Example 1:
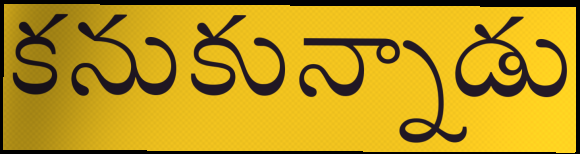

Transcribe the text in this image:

కనుకున్నాడు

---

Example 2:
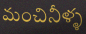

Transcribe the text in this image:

మంచినీళ్ళ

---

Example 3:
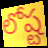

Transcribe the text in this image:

లోష్ట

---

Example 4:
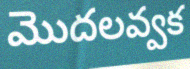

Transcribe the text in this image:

మొదలవ్వక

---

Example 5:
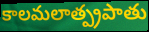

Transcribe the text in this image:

కాలమలాత్ప్రపాతు